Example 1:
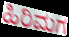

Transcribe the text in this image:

ಹಿರಿಮಗ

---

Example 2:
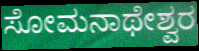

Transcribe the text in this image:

ಸೋಮನಾಥೇಶ್ವರ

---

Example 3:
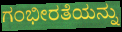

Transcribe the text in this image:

ಗಂಭೀರತೆಯನ್ನು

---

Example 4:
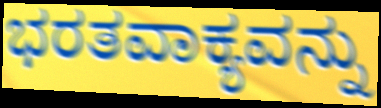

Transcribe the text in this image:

ಭರತವಾಕ್ಯವನ್ನು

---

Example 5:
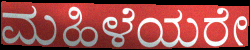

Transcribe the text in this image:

ಮಹಿಳೆಯರೇ